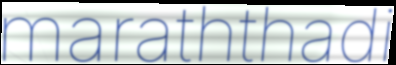
maraththadi